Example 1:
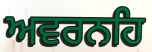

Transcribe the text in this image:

ਅਵਰਨਹਿ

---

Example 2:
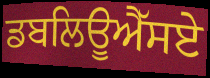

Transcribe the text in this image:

ਡਬਲਿਊਐੱਸਏ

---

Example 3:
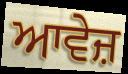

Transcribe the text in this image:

ਆਵੇਜ਼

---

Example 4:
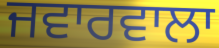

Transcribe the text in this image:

ਜਵਾਰਵਾਲਾ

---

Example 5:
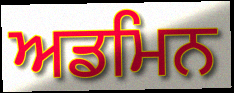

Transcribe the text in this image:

ਅਡਮਿਨ